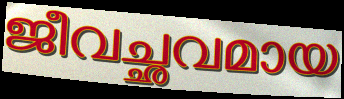
ജീവച്ഛവമായ